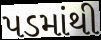
પડમાંથી